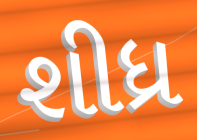
શીધ્ર